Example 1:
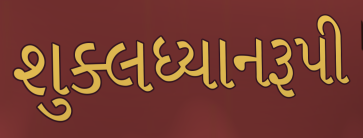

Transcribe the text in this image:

શુક્લધ્યાનરૂપી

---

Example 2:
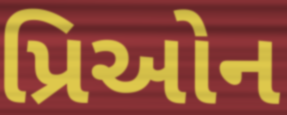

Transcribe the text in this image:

પ્રિઓન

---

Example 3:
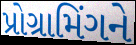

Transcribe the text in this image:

પ્રોગ્રામિંગને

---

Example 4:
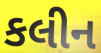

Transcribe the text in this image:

કલીન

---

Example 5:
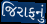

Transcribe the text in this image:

જિરાફનું